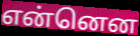
என்னென